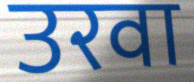
उरवा